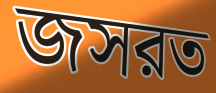
জসরত